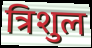
त्रिशुल